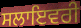
ਸਲਾਇਵਰੀ